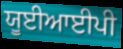
ਯੂਈਆਈਪੀ